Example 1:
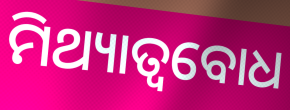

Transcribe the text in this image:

ମିଥ୍ୟାତ୍ୱବୋଧ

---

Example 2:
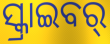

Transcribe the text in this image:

ସ୍କ୍ରାଇବର୍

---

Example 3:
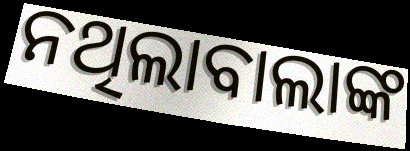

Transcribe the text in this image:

ନଥିଲାବାଲାଙ୍କ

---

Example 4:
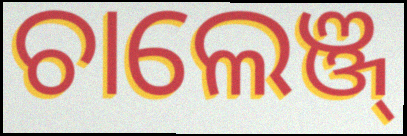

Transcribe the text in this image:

ଚାଲେଞ୍ଜ୍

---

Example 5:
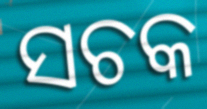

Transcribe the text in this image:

ସଚକ